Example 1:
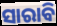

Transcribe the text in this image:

ସାରାବି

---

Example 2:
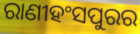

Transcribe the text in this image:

ରାଣୀହଂସପୁରର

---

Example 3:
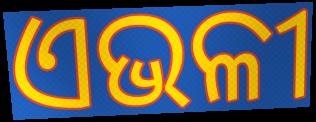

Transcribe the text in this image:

ଏଭଳୀ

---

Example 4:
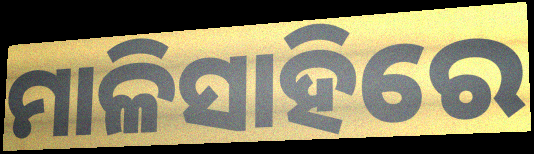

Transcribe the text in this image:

ମାଳିସାହିରେ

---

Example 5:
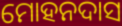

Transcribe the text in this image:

ମୋହନଦାସ